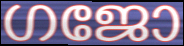
ഗജോ